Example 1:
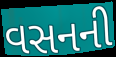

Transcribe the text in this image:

વસનની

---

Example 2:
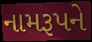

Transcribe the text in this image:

નામરૂપને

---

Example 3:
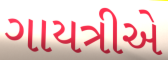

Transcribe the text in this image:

ગાયત્રીએ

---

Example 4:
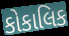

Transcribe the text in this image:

કોકાલિક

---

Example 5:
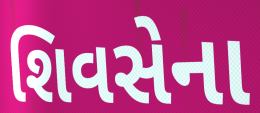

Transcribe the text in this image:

શિવસેના